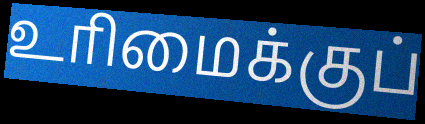
உரிமைக்குப்